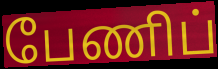
பேணிப்